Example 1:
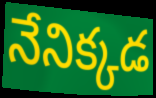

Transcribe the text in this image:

నేనిక్కడ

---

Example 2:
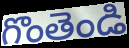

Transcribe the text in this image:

గొంతెండి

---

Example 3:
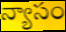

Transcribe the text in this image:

న్యాసం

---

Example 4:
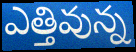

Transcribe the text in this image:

ఎత్తివున్న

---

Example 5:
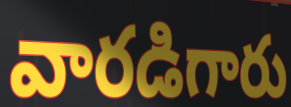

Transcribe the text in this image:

వారడిగారు